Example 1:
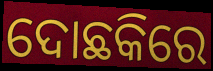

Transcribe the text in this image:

ଦୋଛକିରେ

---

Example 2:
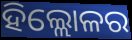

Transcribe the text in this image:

ହିଲ୍ଲୋଳର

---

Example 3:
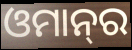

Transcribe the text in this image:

ଓମାନ୍‌ର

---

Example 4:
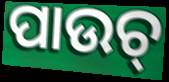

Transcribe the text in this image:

ପାଉଚ୍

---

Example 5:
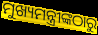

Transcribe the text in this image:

ମୁଖ୍ୟମନ୍ତ୍ରୀଙ୍କଠାରୁ